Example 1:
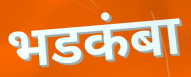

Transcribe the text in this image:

भडकंबा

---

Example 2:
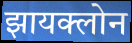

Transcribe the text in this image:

झायक्लोन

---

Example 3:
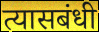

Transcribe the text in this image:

त्यासबंधी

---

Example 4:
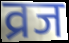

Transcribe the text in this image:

व्रज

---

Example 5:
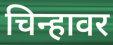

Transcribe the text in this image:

चिन्हावर